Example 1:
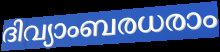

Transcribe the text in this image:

ദിവ്യാംബരധരാം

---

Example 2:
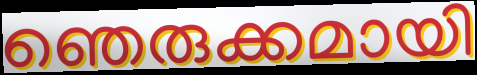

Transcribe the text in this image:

ഞെരുക്കമായി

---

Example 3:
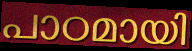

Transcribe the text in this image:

പാഠമായി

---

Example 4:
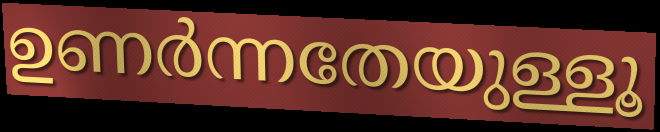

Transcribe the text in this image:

ഉണർന്നതേയുള്ളൂ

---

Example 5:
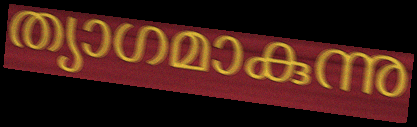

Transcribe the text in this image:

ത്യാഗമാകുന്നു